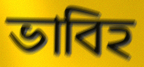
ভাবিহ